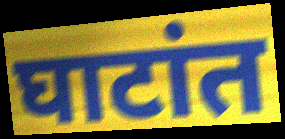
घाटांत